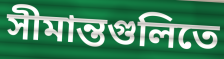
সীমান্তগুলিতে